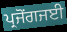
ਪ੍ਰਜੋਂਗਜਈ